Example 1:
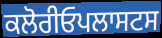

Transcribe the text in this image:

ਕਲੋਰੀਓਪਲਾਸਟਸ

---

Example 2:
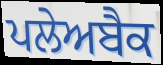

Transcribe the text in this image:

ਪਲੇਅਬੈਕ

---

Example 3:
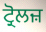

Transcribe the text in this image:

ਟ੍ਰੋਲਜ਼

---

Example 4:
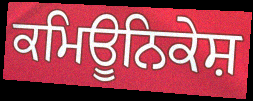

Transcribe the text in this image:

ਕਮਿਊਨਿਕੇਸ਼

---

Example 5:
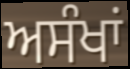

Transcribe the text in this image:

ਅਸੰਖਾਂ